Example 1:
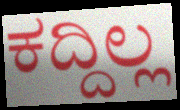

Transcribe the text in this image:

ಕದ್ದಿಲ್ಲ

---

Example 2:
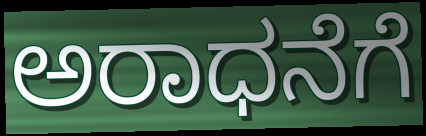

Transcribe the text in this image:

ಅರಾಧನೆಗೆ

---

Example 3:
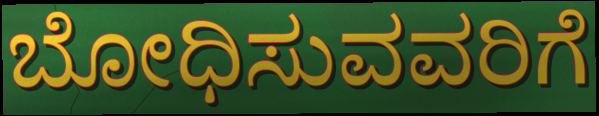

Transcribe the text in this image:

ಬೋಧಿಸುವವರಿಗೆ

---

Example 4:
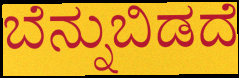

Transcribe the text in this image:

ಬೆನ್ನುಬಿಡದೆ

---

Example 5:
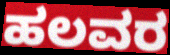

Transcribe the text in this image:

ಹಲವರ